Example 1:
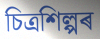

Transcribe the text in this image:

চিত্ৰশিল্পৰ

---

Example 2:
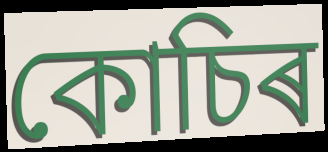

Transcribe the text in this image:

কোচিৰ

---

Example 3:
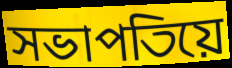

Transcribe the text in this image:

সভাপতিয়ে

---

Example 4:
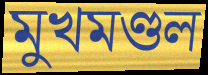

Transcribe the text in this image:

মুখমণ্ডল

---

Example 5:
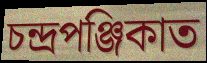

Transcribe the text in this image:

চন্দ্ৰপঞ্জিকাত